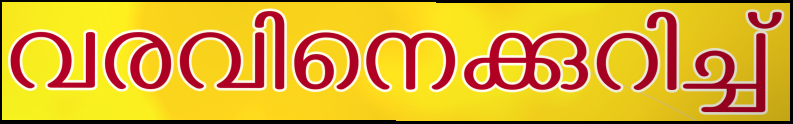
വരവിനെക്കുറിച്ച്